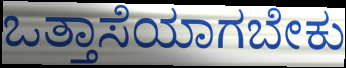
ಒತ್ತಾಸೆಯಾಗಬೇಕು